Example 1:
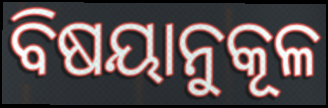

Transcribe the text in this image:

ବିଷୟାନୁକୂଳ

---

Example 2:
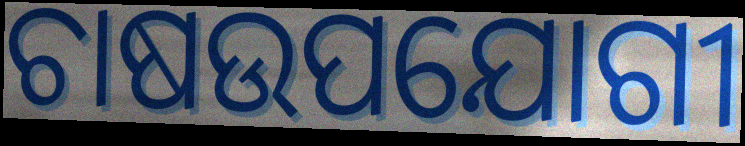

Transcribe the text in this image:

ଚାଷଉପଯୋଗୀ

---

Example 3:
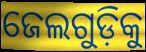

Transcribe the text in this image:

ଜେଲଗୁଡ଼ିକୁ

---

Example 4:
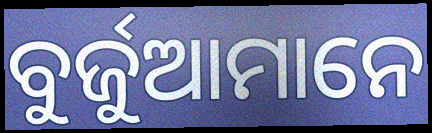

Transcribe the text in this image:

ବୁର୍ଜୁଆମାନେ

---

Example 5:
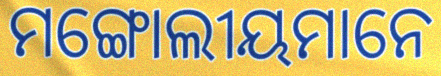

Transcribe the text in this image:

ମଙ୍ଗୋଲୀୟମାନେ